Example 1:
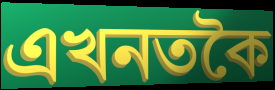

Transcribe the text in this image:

এখনতকৈ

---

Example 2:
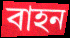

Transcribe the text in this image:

বাহন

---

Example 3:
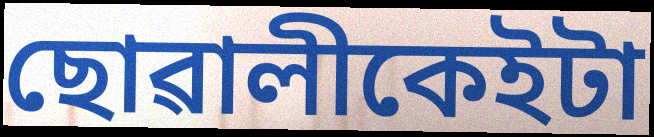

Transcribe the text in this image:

ছোৱালীকেইটা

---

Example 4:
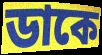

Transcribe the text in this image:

ডাকে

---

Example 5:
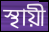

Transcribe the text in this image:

স্থায়ী